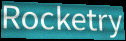
Rocketry